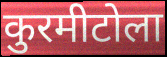
कुरमीटोला